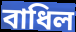
বাধিল